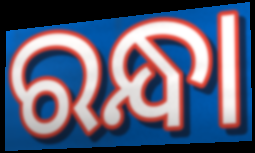
ରନ୍ଧା